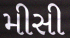
મીસી